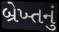
બ્રેખ્તનું